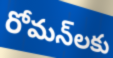
రోమన్‌లకు